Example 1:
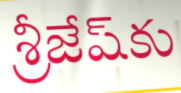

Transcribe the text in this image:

శ్రీజేష్‌కు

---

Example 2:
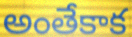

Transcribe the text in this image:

అంతేకాక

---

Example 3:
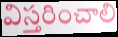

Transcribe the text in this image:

విస్తరించాలి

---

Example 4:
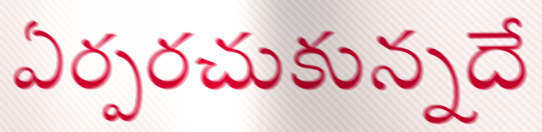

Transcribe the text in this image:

ఏర్పరచుకున్నదే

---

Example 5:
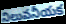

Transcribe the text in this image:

నిలువనీయక